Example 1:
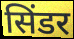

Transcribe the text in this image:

सिंडर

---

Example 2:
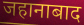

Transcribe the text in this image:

जहानाबाद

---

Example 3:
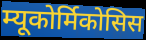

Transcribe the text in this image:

म्यूकोर्मिकोसिस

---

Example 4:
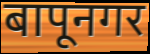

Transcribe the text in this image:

बापूनगर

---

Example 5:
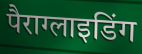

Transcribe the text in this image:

पैराग्लाइडिंग